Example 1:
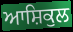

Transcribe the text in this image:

ਆਸ਼ਿਕੁਲ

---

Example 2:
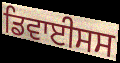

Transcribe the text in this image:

ਡਿਵਾਈਸਸ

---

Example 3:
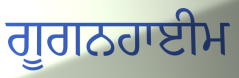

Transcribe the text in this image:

ਗੂਗਨਹਾਈਮ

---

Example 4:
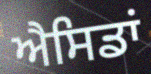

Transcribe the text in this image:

ਐਸਿਡਾਂ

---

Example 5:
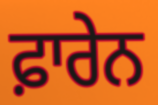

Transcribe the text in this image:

ਫ਼ਾਰੇਨ